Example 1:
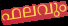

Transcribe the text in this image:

ഫലവും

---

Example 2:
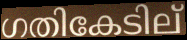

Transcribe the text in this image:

ഗതികേടില്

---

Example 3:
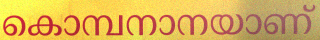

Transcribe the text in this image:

കൊമ്പനാനയാണ്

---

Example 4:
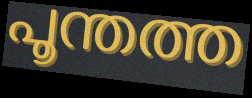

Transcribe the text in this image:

പൂന്തത്ത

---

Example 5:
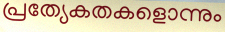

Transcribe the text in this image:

പ്രത്യേകതകളൊന്നും